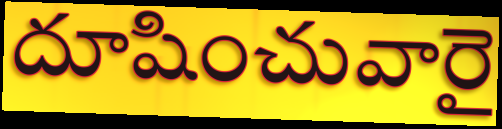
దూషించువారై